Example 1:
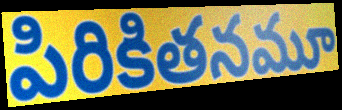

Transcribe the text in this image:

పిరికితనమూ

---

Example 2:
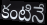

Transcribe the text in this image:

కంటినే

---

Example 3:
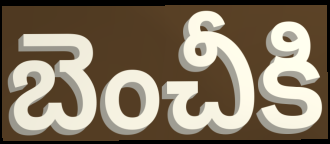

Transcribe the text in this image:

బెంచీకి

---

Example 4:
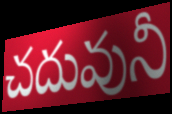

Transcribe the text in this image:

చదువునీ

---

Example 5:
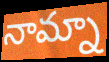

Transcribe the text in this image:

నామ్నా